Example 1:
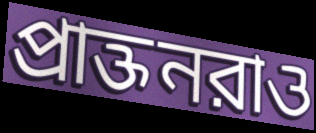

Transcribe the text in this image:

প্রাক্তনরাও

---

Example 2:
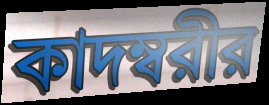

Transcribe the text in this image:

কাদম্বরীর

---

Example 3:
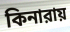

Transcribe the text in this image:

কিনারায়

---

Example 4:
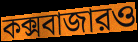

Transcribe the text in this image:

কক্সবাজারও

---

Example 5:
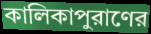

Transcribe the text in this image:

কালিকাপুরাণের